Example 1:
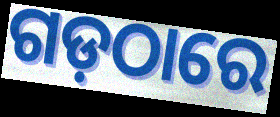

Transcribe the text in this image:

ଗଡ଼ଠାରେ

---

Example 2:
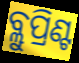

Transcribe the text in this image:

ବ୍ଲୁପ୍ରିଣ୍ଟ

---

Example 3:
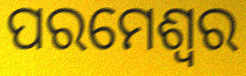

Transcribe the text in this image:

ପରମେଶ୍ୱର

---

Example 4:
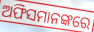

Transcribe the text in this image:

ଅଫିସମାନଙ୍କରେ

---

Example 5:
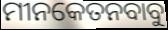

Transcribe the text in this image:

ମୀନକେତନବାବୁ